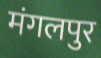
मंगलपुर